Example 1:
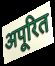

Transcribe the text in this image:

अपूरित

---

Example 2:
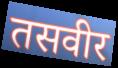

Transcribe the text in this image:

तसवीर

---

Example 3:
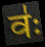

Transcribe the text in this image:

वः॑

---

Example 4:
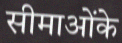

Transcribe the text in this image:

सीमाओंके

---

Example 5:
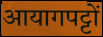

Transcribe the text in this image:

आयागपट्टों